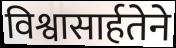
विश्वासार्हतेने